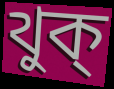
থুক্